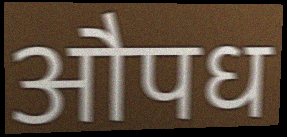
औपध